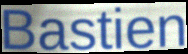
Bastien